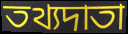
তথ্যদাতা